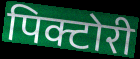
पिक्टोरी